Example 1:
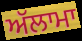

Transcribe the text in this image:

ਅੱਲਾਮਾ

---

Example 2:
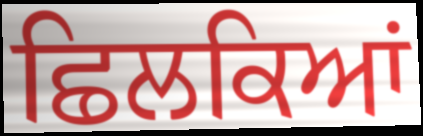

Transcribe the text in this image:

ਛਿਲਕਿਆਂ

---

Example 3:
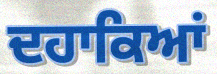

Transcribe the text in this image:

ਦਹਾਕਿਆਂ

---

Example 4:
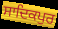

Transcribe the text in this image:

ਸਾਦਿਕਪੁਰ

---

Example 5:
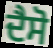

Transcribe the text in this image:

ਦੈਸੋ